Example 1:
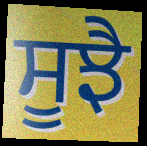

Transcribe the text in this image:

ਸੂਝੈ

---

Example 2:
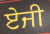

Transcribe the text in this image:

ਏਜੀ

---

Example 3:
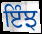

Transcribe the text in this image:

ਇੰਝ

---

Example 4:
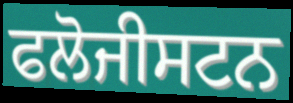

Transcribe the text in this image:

ਫਲੋਜੀਸਟਨ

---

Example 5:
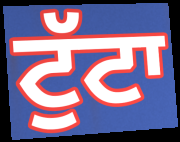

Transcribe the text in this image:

ਟੁੱਟਾ